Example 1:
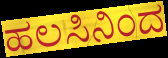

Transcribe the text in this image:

ಹಲಸಿನಿಂದ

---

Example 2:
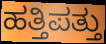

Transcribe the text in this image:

ಹತ್ತಿಪತ್ತು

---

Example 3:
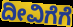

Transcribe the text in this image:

ದೀವಿಗೆಗೆ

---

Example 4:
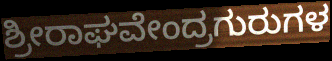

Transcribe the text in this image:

ಶ್ರೀರಾಘವೇಂದ್ರಗುರುಗಳ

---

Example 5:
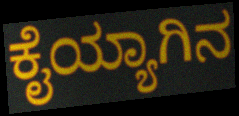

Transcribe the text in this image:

ಕೈಯ್ಯಾಗಿನ